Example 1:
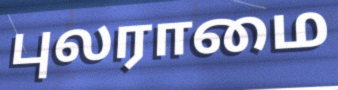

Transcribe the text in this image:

புலராமை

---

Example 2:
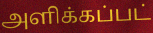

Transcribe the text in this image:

அளிக்கப்பட்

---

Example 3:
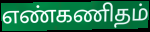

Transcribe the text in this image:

எண்கணிதம்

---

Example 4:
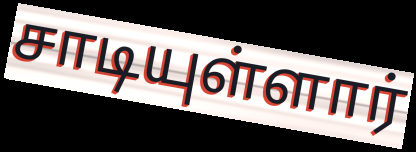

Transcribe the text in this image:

சாடியுள்ளார்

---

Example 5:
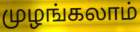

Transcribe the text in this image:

முழங்கலாம்